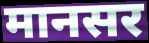
मानसर